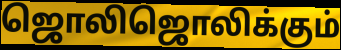
ஜொலிஜொலிக்கும்